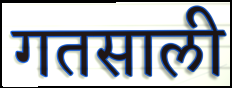
गतसाली